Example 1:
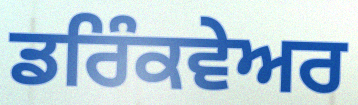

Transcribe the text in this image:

ਡਰਿੰਕਵੇਅਰ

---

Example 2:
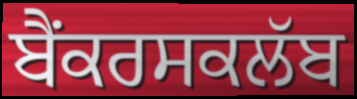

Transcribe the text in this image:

ਬੈਂਕਰਸਕਲੱਬ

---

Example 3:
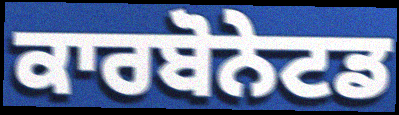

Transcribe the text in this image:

ਕਾਰਬੋਨੇਟਡ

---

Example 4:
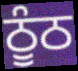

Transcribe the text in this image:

ਠੂੰਠ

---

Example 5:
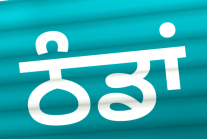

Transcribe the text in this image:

ਠੰਡਾਂ